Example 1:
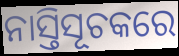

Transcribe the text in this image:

ନାସ୍ତିସୂଚକରେ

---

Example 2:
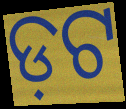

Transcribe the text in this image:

ଡ଼ଟ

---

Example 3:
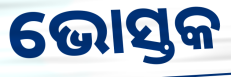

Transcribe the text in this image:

ଭୋସ୍ତକ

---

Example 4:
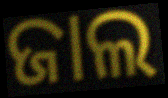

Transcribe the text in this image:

ଜାଲ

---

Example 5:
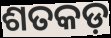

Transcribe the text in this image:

ଶତକଡ଼